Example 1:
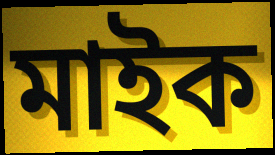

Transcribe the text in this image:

মাইক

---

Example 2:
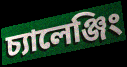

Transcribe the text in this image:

চ্যালেঞ্জিং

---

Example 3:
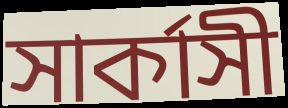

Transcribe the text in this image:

সার্কাসী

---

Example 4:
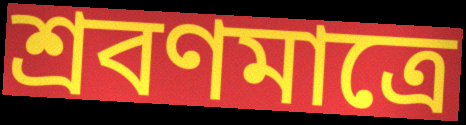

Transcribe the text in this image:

শ্রবণমাত্রে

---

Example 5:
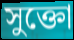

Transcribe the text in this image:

সুক্তো